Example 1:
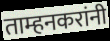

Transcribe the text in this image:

ताम्हनकरांनी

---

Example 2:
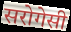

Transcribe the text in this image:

सरोगेसी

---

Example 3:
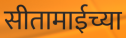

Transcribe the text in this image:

सीतामाईच्या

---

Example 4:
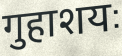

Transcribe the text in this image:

गुहाशयः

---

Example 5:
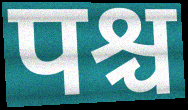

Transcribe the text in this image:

पश्च